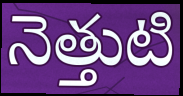
నెత్తుటి